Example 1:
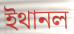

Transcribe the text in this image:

ইথানল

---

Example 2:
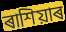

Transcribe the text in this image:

ৰাশিয়াৰ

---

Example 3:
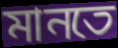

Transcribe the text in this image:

মানতে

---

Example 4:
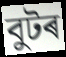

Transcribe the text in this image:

বুটৰ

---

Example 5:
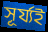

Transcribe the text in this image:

সূৰ্য্যই